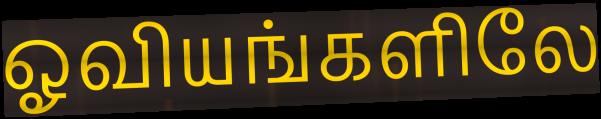
ஓவியங்களிலே